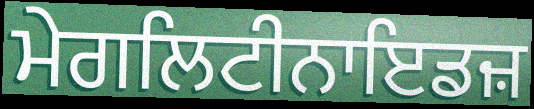
ਮੇਗਲਿਟੀਨਾਇਡਜ਼